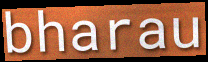
bharau